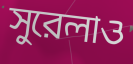
সুরেলাও